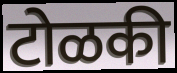
टोळकी